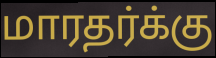
மாரதர்க்கு